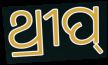
ଥ୍ରୀପ୍